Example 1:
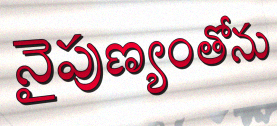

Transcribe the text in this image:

నైపుణ్యంతోను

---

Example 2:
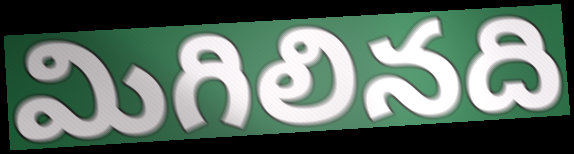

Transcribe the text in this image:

మిగిలినది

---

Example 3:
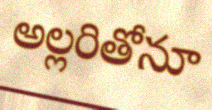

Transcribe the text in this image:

అల్లరితోనూ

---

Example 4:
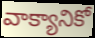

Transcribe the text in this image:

వాక్యానికో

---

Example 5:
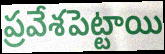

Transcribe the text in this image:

ప్రవేశపెట్టాయి